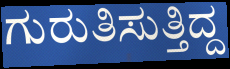
ಗುರುತಿಸುತ್ತಿದ್ದ